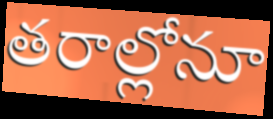
తరాల్లోనూ